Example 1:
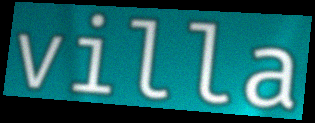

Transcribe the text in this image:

villa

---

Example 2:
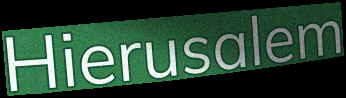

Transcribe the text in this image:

Hierusalem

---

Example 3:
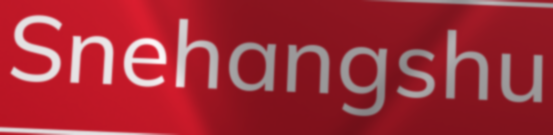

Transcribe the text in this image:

Snehangshu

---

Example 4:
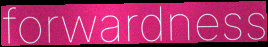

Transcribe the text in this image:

forwardness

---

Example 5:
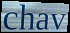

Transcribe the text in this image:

chav